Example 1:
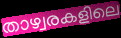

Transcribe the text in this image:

താഴ്വരകളിലെ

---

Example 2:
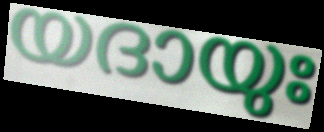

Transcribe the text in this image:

യദായുഃ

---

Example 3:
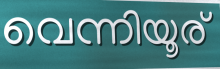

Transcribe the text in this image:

വെന്നിയൂര്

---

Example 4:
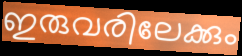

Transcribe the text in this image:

ഇരുവരിലേക്കും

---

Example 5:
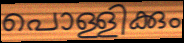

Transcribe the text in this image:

പൊള്ളിക്കും